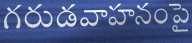
గరుడవాహనంపై